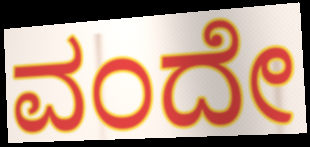
ವಂದೇ